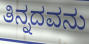
ತಿನ್ನದವನು